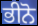
ਭੀਨੋ